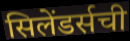
सिलेंडर्सची